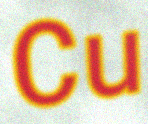
Cu